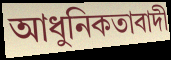
আধুনিকতাবাদী